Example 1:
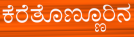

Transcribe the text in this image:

ಕೆರೆತೊಣ್ಣೂರಿನ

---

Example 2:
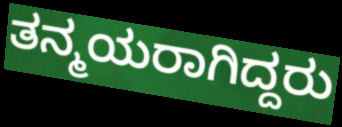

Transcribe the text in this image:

ತನ್ಮಯರಾಗಿದ್ದರು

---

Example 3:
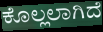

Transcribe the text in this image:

ಕೊಲ್ಲಲಾಗಿದೆ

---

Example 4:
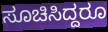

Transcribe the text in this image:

ಸೂಚಿಸಿದ್ದರೂ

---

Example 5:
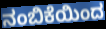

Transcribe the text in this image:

ನಂಬಿಕೆಯಿಂದ